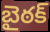
బైఠక్